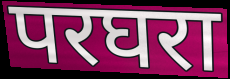
परघरा